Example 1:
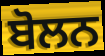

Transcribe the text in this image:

ਬੋਲਨ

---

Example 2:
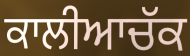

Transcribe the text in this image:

ਕਾਲੀਆਚੱਕ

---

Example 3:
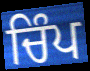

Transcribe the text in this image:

ਚਿੰਪ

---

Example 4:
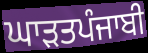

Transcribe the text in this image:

ਘਾੜਤਪੰਜਾਬੀ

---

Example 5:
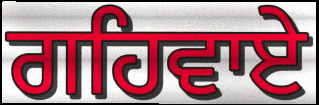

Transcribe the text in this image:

ਗਹਿਵਾਏ